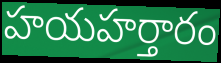
హయహర్తారం